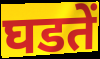
घडतें